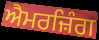
ਐਮਰਜ਼ਿੰਗ